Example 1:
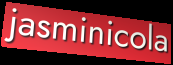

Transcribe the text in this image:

jasminicola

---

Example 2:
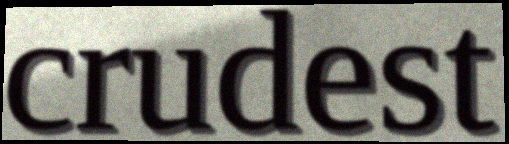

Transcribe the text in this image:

crudest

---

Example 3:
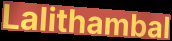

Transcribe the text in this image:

Lalithambal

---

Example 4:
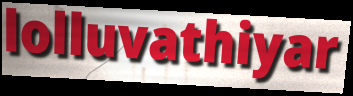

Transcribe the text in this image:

lolluvathiyar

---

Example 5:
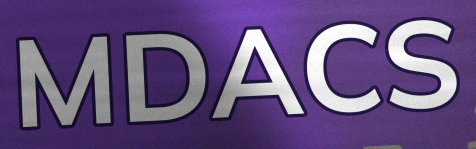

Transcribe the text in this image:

MDACS